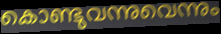
കൊണ്ടുവന്നുവെന്നും